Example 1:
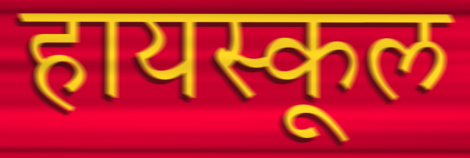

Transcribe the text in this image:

हायस्कूल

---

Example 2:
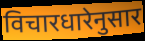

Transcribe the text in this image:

विचारधारेनुसार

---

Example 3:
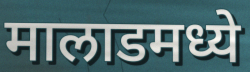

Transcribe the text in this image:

मालाडमध्ये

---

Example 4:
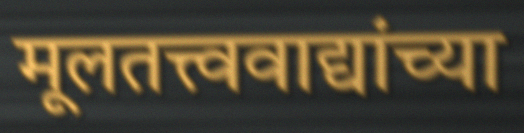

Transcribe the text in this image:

मूलतत्त्ववाद्यांच्या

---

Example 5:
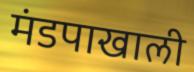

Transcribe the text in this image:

मंडपाखाली